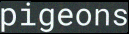
pigeons